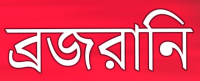
ব্রজরানি